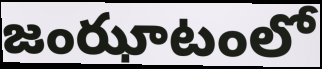
జంఝాటంలో